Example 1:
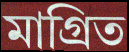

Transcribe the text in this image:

মাগ্রিত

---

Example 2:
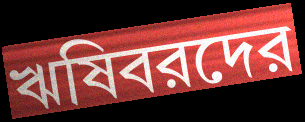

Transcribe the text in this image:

ঋষিবরদের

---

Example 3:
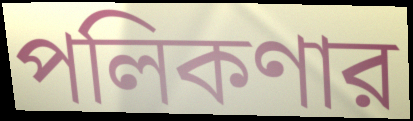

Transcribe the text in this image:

পলিকণার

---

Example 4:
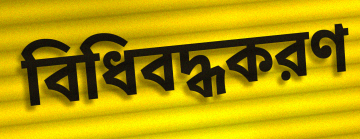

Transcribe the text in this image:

বিধিবদ্ধকরণ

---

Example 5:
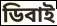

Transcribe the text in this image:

ডিবাই